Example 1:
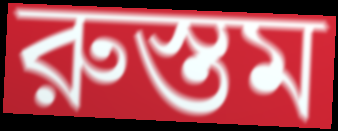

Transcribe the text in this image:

রুস্তম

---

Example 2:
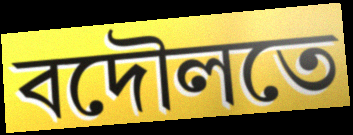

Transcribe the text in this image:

বদৌলতে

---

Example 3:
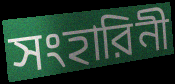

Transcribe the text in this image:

সংহারিনী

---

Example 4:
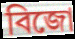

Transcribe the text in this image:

বিজো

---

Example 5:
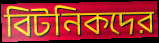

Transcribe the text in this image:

বিটনিকদের